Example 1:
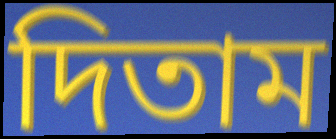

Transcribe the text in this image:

দিতাম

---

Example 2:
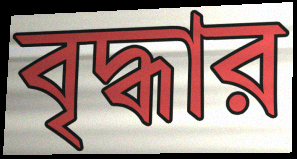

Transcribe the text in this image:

বৃদ্ধার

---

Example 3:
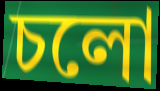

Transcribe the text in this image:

চলো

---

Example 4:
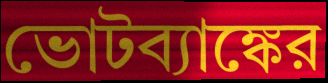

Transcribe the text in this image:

ভোটব্যাঙ্কের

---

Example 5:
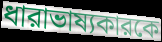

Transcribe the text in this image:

ধারাভাষ্যকারকে